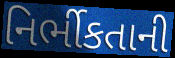
નિર્ભીકતાની